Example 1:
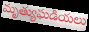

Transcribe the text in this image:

మృత్యుఘడియలు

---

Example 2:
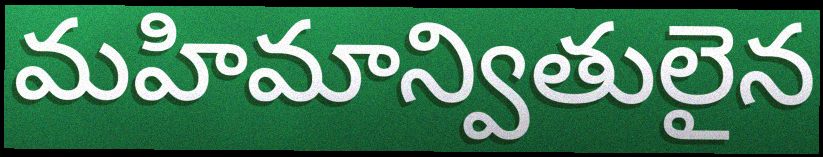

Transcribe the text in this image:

మహిమాన్వితులైన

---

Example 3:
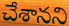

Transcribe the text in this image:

చేశానని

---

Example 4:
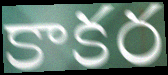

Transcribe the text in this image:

కాకర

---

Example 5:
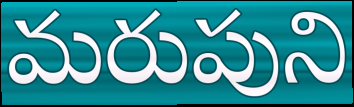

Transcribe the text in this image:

మరుపుని